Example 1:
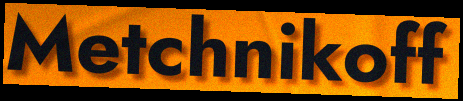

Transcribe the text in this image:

Metchnikoff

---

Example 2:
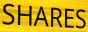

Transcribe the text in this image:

SHARES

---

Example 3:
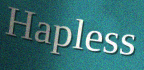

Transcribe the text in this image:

Hapless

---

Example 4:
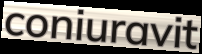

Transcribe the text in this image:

coniuravit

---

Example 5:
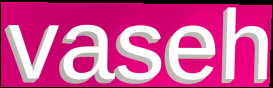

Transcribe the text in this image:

vaseh